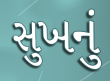
સુખનું